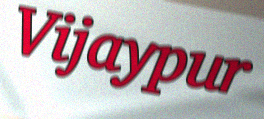
Vijaypur